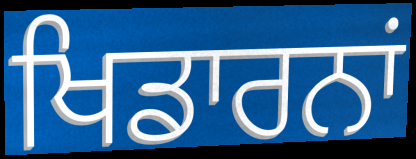
ਖਿਡਾਰਨਾਂ